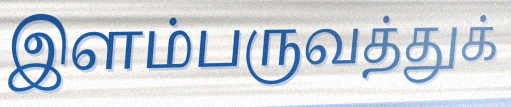
இளம்பருவத்துக்